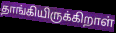
தாங்கியிருக்கிறாள்